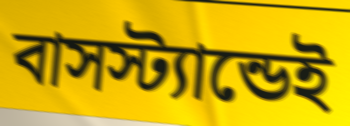
বাসস্ট্যান্ডেই